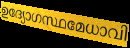
ഉദ്യോഗസ്ഥമേധാവി